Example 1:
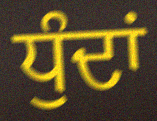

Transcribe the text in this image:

ਧੁੰਦਾਂ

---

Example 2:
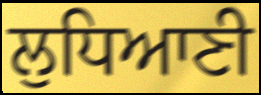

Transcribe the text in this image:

ਲੁਧਿਆਣੀ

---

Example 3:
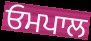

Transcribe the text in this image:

ਓਮਪਾਲ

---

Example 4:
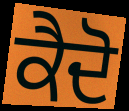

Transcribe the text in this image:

ਕੈਦੋ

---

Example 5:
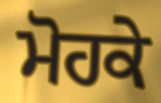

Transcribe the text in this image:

ਮੋਹਕੇ